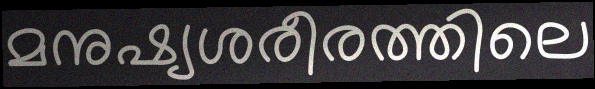
മനുഷ്യശരീരത്തിലെ